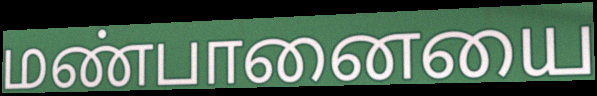
மண்பானையை